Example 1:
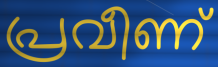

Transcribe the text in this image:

പ്രവീണ്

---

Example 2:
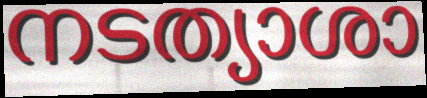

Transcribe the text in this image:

നടത്യാശാ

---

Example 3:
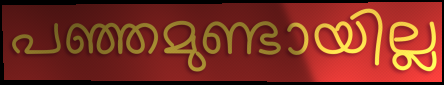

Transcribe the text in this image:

പഞ്ഞമുണ്ടായില്ല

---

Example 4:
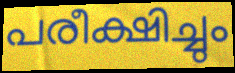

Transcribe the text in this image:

പരീക്ഷിച്ചും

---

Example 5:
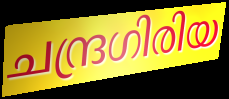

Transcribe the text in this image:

ചന്ദ്രഗിരിയ